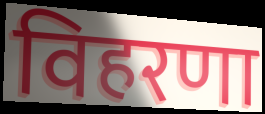
विहरणा